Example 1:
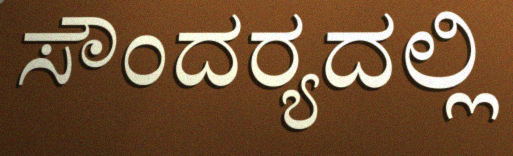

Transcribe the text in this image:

ಸೌಂದರ‍್ಯದಲ್ಲಿ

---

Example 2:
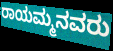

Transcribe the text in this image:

ರಾಯಮ್ಮನವರು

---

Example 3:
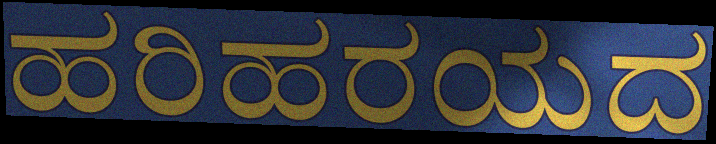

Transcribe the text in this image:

ಹರಿಹರಯದ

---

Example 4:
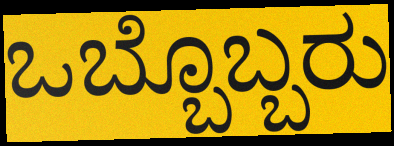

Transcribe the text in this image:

ಒಬ್ಬೊಬ್ಬರು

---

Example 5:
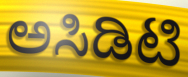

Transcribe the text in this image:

ಅಸಿಡಿಟಿ